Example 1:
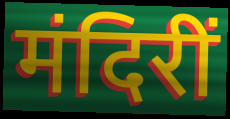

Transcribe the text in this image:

मंदिरीं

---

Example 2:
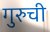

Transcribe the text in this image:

गुरुची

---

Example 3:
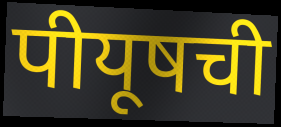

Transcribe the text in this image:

पीयूषची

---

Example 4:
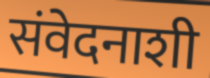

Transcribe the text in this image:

संवेदनाशी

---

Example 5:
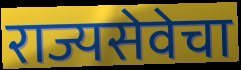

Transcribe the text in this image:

राज्यसेवेचा